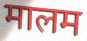
मालम